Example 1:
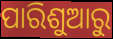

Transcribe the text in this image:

ପାରିଶୁଆରୁ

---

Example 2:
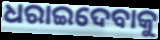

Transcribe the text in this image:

ଧରାଇଦେବାକୁ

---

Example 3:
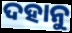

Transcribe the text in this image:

ଦହାନୁ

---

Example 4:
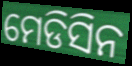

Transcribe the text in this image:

ମେଡିସିନ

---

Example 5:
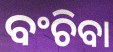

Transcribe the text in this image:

ବଂଚିବା